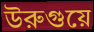
উরুগুয়ে